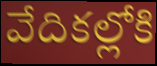
వేదికల్లోకి